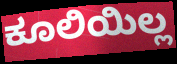
ಕೂಲಿಯಿಲ್ಲ